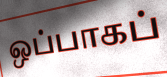
ஒப்பாகப்